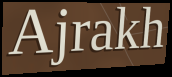
Ajrakh